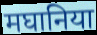
मघानिया